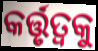
କର୍ତ୍ତୃତ୍ୱକୁ